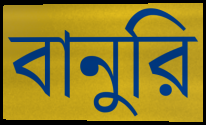
বানুরি